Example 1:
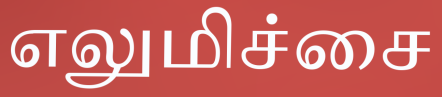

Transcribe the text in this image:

எலுமிச்சை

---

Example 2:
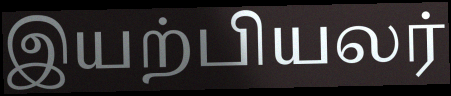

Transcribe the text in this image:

இயற்பியலர்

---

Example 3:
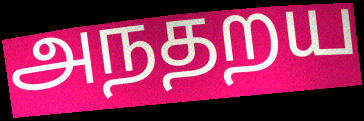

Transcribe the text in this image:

அநதறய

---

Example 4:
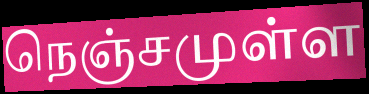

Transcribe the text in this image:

நெஞ்சமுள்ள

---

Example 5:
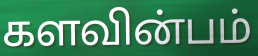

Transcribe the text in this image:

களவின்பம்